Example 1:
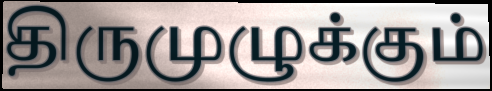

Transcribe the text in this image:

திருமுழுக்கும்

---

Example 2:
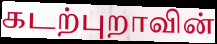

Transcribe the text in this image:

கடற்புறாவின்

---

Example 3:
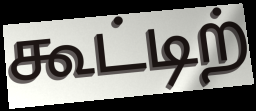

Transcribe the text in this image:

கூட்டிற்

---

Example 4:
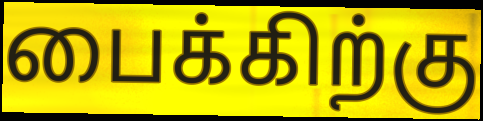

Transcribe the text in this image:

பைக்கிற்கு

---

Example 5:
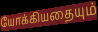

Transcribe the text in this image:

யோக்கியதையும்